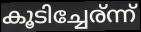
കൂടിച്ചേര്ന്ന്